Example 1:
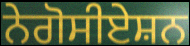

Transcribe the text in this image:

ਨੇਗੋਸੀਏਸ਼ਨ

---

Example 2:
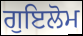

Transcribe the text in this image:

ਗੁਇਲੋਮ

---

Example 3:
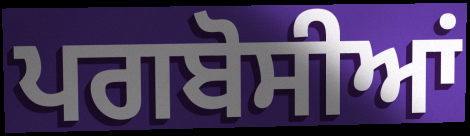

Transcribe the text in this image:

ਪਗਬੋਸੀਆਂ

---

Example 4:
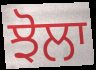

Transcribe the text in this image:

ਝੋਲਾ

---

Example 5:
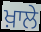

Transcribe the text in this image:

ਖ਼ਾਲੇ